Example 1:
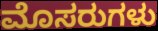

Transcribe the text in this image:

ಮೊಸರುಗಳು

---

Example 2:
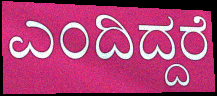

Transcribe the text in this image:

ಎಂದಿದ್ದರೆ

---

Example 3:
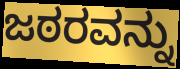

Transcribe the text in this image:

ಜಠರವನ್ನು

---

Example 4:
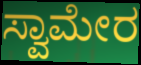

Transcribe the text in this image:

ಸ್ವಾಮೇರ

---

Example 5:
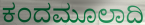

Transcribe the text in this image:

ಕಂದಮೂಲಾದಿ